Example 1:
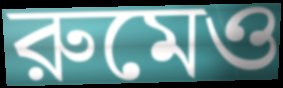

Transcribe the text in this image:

রুমেও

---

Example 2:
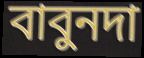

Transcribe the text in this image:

বাবুনদা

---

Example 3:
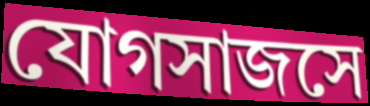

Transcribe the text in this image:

যোগসাজসে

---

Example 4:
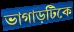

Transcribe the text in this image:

ভাগাড়টিকে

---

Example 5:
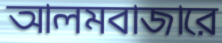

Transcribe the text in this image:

আলমবাজারে